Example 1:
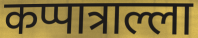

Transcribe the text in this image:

कप्पात्राल्ला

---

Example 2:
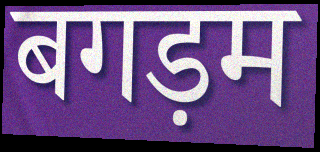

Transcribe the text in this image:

बगड़म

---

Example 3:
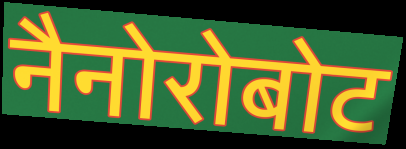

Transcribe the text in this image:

नैनोरोबोट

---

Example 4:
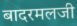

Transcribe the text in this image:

बादरमलजी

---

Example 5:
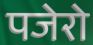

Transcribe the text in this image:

पजेरो